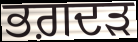
ਭਗ਼ਦੜ